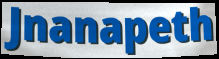
Jnanapeth